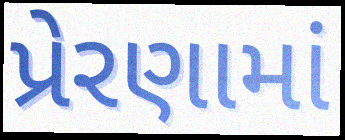
પ્રેરણામાં